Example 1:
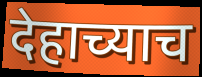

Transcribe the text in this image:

देहाच्याच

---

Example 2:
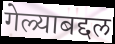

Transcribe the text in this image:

गेल्याबद्दल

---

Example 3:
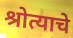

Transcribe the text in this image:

श्रोत्याचे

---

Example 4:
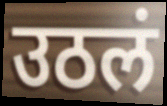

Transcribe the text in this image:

उठलं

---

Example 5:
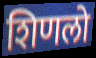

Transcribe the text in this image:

शिणलो